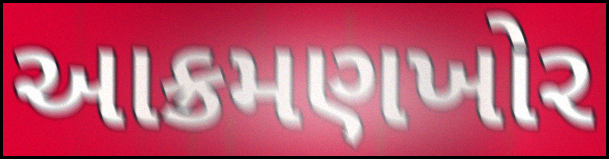
આક્રમણખોર